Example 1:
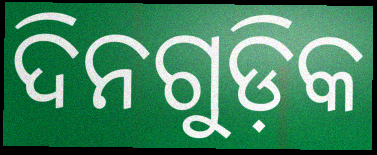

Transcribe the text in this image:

ଦିନଗୁଡ଼ିକ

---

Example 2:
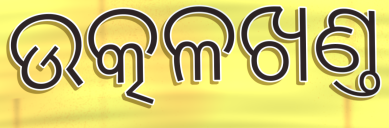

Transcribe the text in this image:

ଉତ୍କଳଖଣ୍ତ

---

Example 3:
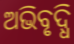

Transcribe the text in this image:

ଅଭିବୃଦ୍ଧି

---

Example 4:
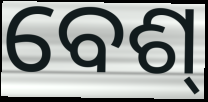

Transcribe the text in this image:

ବେଶ୍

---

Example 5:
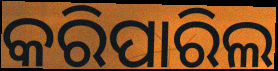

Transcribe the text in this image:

କରିପାରିଲ